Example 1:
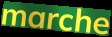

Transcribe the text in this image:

marche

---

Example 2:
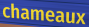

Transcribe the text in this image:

chameaux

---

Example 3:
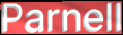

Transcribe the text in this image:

Parnell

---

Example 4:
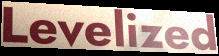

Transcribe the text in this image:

Levelized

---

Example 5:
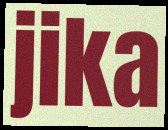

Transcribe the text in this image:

jika